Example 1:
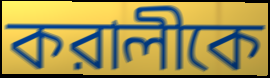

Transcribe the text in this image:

করালীকে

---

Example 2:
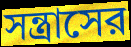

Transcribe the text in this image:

সন্ত্রাসের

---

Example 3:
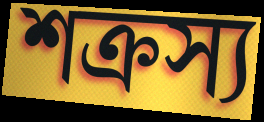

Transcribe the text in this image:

শক্রস্য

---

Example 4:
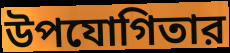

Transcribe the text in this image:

উপযোগিতার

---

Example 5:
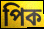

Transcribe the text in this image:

পিক